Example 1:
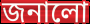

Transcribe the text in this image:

জনালো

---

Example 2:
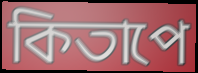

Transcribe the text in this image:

কিতাপে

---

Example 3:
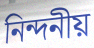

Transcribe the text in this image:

নিন্দনীয়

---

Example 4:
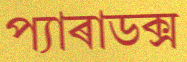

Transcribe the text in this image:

প্যাৰাডক্স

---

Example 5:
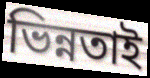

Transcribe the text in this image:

ভিন্নতাই